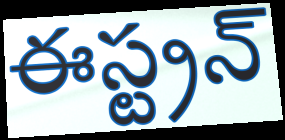
ఈస్ట్రన్